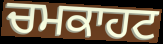
ਚਮਕਾਹਟ